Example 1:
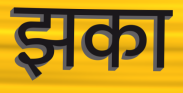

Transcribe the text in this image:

झका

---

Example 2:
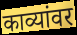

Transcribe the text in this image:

काव्यांवर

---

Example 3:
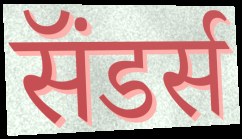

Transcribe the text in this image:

सॅंडर्स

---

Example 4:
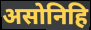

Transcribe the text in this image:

असोनिहि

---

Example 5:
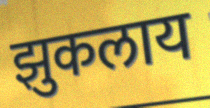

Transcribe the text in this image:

झुकलाय